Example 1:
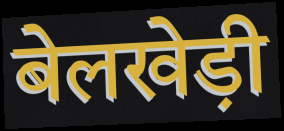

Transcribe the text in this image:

बेलखेड़ी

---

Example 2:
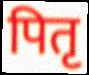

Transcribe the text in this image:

पितृ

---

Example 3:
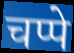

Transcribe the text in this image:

चप्पे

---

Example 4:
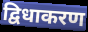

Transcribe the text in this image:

द्विधाकरण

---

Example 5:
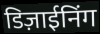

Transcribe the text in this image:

डिज़ाईनिंग